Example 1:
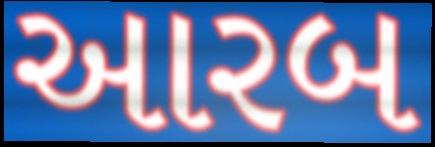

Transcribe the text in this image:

આરબ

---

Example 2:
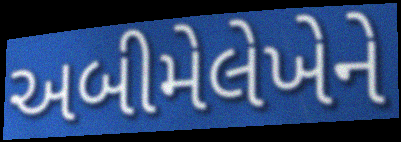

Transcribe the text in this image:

અબીમેલેખેને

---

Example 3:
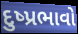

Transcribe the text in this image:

દુષ્પ્રભાવો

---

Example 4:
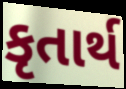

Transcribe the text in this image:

કૃતાર્થ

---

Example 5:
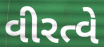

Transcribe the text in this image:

વીરત્વે